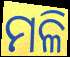
ମଳି